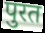
पुरत